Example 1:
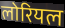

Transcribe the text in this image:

लोरियल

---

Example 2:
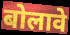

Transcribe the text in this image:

बोलावे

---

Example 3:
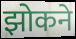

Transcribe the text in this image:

झोकने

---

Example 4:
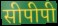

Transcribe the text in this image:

सीपीपी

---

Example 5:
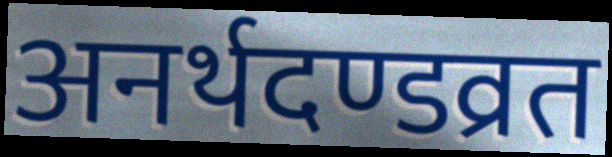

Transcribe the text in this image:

अनर्थदण्डव्रत